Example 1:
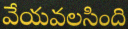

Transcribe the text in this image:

వేయవలసింది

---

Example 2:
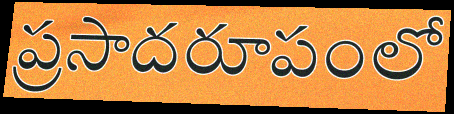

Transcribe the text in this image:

ప్రసాదరూపంలో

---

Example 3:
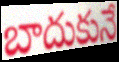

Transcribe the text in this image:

బాదుకునే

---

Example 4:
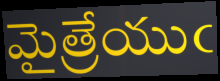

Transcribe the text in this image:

మైత్రేయుఁ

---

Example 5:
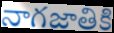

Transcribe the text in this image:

నాగజాతికి